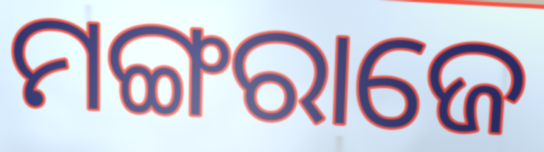
ମଙ୍ଗରାଜେ